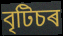
বৃটিচৰ